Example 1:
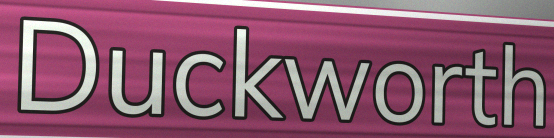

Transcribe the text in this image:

Duckworth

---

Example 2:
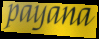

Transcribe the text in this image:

payana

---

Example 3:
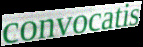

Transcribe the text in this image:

convocatis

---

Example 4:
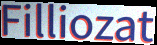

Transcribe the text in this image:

Filliozat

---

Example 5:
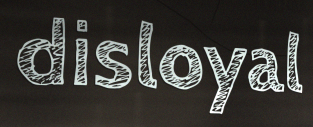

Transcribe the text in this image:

disloyal